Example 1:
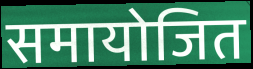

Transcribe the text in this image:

समायोजित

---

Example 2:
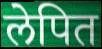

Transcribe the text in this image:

लेपित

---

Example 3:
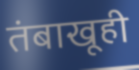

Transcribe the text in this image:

तंबाखूही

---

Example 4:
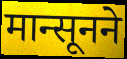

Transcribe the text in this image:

मान्सूनने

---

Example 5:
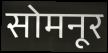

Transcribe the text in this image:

सोमनूर